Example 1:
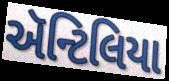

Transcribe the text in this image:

ઍન્ટિલિયા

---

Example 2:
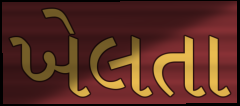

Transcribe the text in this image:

ખેલતા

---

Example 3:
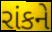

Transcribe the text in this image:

રાંકને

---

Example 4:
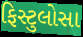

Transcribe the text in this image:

ફિસ્ટુલોસા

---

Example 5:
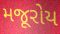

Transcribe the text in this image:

મજૂરોય